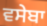
ਵਸੇਬਾ